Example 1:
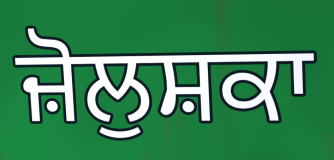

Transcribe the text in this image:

ਜ਼ੋਲੁਸ਼ਕਾ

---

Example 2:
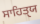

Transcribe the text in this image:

ਸਾਹਿਤੑਯ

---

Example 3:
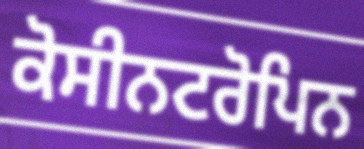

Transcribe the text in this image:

ਕੋਸੀਨਟਰੋਪਿਨ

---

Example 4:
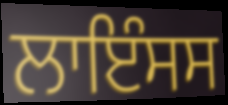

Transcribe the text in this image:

ਲਾਇੰਸਸ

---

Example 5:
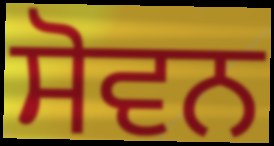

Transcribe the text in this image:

ਸੋਵਨ